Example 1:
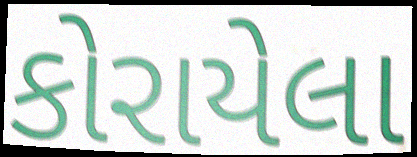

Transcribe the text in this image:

કોરાયેલા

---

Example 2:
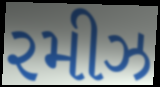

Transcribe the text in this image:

રમીઝ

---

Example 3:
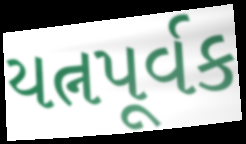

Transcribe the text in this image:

યત્નપૂર્વક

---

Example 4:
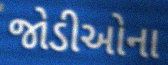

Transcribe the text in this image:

જોડીઓના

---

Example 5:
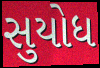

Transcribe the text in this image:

સુયોધ